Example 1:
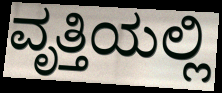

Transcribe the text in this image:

ವೃತ್ತಿಯಲ್ಲಿ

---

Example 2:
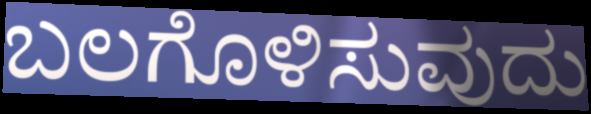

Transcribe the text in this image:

ಬಲಗೊಳಿಸುವುದು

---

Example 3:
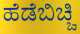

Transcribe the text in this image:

ಹೆಡೆಬಿಚ್ಚಿ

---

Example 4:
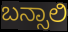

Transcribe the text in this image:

ಬನ್ಸಾಲಿ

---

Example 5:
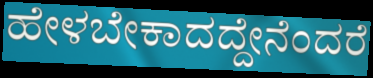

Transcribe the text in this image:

ಹೇಳಬೇಕಾದದ್ದೇನೆಂದರೆ